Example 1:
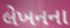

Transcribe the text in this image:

લેખનના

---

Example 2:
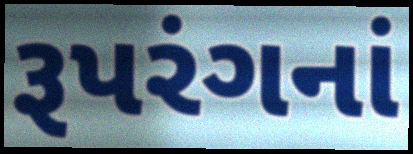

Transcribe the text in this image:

રૂપરંગનાં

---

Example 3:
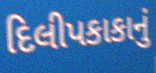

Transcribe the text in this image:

દિલીપકાકાનું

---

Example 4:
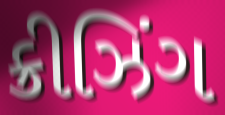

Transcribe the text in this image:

ક્રીઝિંગ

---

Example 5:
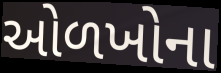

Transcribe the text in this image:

ઓળખોના